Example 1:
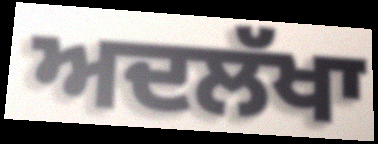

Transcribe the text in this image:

ਅਦਲੱਖਾ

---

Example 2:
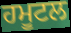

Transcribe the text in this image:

ਹਮੂਟਲ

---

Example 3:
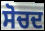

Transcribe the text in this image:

ਸੋਚਦ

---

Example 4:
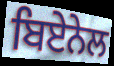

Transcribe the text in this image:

ਬਿਏਨੇਲ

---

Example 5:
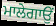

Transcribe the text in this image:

ਮਾਲੇਗਾਉਂ